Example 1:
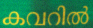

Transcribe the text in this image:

കവറിൽ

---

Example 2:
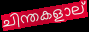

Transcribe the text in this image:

ചിന്തകളാല്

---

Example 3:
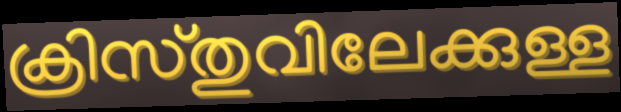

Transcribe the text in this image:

ക്രിസ്തുവിലേക്കുള്ള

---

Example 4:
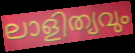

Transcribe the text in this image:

ലാളിത്യവും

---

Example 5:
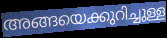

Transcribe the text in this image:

അങ്ങയെക്കുറിച്ചുള്ള